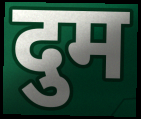
दुम